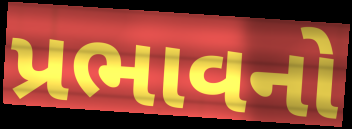
પ્રભાવનો